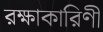
রক্ষাকারিণী